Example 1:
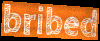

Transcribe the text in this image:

bribed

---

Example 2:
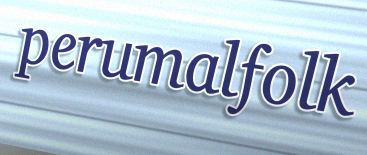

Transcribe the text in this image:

perumalfolk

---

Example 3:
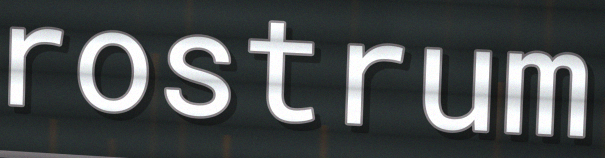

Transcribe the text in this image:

rostrum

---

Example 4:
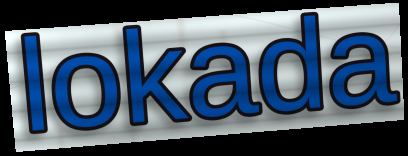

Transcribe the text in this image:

lokada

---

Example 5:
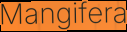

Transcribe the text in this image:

Mangifera